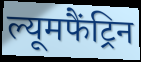
ल्यूमफैंट्रिन